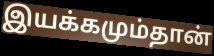
இயக்கமும்தான்